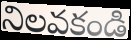
నిలవకండి